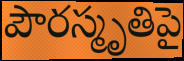
పౌరస్మృతిపై